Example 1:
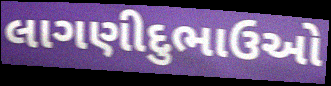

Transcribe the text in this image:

લાગણીદુભાઉઓ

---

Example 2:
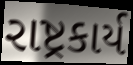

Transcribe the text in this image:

રાષ્ટ્રકાર્ય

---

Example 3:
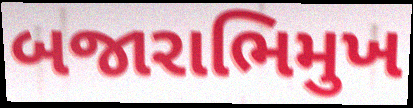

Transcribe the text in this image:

બજારાભિમુખ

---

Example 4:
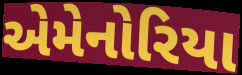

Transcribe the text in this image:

એમેનોરિયા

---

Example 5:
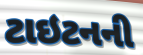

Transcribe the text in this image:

ટાઇટનની